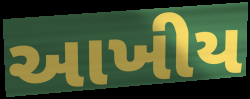
આખીય